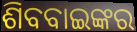
ଶିବବାଇଙ୍କର